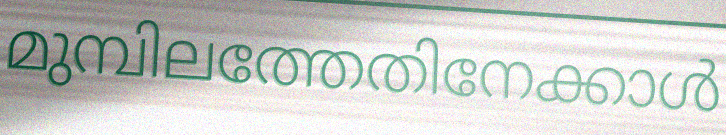
മുമ്പിലത്തേതിനേക്കാൾ